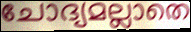
ചോദ്യമല്ലാതെ